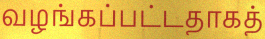
வழங்கப்பட்டதாகத்